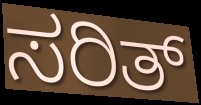
ಸರಿತ್